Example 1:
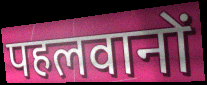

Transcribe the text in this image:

पहलवानों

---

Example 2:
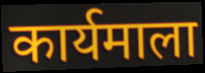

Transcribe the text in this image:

कार्यमाला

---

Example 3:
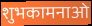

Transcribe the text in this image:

शुभकामनाओ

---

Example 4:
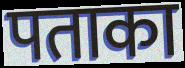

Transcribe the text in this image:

पताका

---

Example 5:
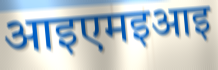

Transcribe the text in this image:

आइएमइआइ